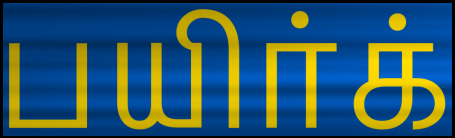
பயிர்க்